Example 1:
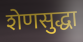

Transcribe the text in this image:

शेणसुद्धा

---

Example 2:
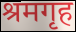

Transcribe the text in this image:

श्रमगृह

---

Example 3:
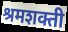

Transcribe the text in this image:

श्रमशक्ती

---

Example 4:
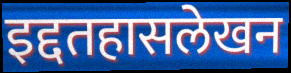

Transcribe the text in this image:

इद्दतहासलेखन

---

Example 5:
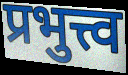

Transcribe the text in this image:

प्रभुत्त्व